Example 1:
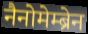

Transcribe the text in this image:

नैनोमेम्ब्रेन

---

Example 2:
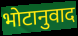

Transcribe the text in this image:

भोटानुवाद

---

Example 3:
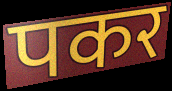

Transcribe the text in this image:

पकर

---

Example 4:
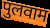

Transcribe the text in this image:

पुलवाम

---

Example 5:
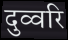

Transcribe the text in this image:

दुव्वरि